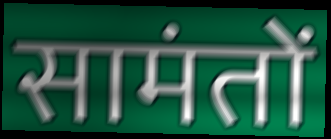
सामंतों